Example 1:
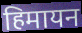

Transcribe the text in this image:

हिमायन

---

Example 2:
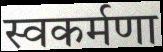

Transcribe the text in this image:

स्वकर्मणा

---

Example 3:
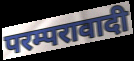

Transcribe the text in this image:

परम्परावादी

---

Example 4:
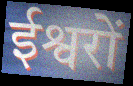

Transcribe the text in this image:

ईश्वरों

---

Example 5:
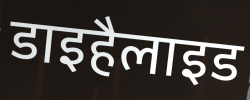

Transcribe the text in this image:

डाइहैलाइड